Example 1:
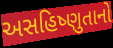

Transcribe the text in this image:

અસહિષ્ણુતાનો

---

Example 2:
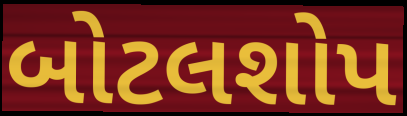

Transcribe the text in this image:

બોટલશોપ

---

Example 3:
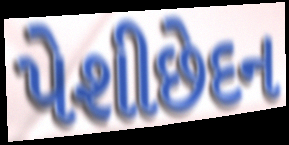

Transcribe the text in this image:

પેશીછેદન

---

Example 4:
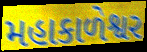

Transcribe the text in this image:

મહાકાળેશ્વર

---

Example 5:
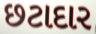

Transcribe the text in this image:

છટાદાર